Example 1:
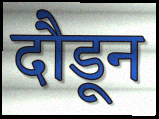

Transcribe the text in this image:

दौडून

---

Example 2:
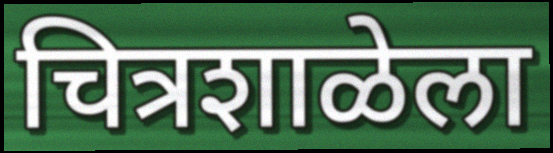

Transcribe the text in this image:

चित्रशाळेला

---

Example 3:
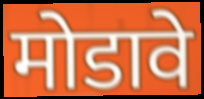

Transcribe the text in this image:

मोडावे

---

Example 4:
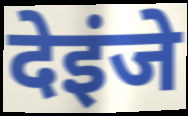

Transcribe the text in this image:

देइंजे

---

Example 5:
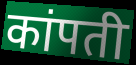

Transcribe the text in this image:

कांपती